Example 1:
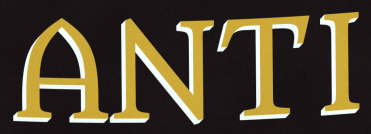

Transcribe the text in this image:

ANTI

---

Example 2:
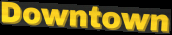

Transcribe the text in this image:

Downtown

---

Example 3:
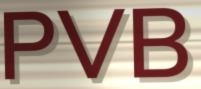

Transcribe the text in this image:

PVB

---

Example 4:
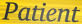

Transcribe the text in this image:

Patient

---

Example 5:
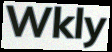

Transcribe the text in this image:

Wkly